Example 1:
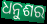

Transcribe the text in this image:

ଧନୁଶର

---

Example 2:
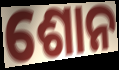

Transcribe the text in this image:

ଶୋନ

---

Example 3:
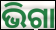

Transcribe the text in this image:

ଭିଗା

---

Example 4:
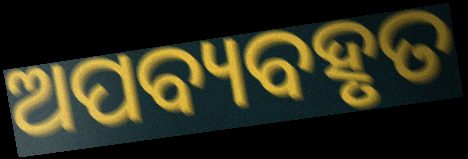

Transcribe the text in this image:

ଅପବ୍ୟବହୃତ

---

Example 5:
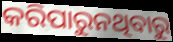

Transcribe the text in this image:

କରିପାରୁନଥିବାରୁ